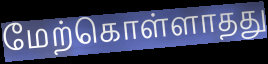
மேற்கொள்ளாதது